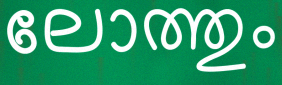
ലോത്തും